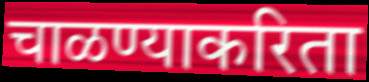
चाळण्याकरिता